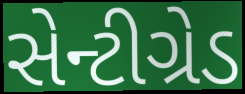
સેન્ટીગ્રેડ